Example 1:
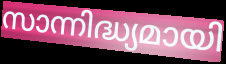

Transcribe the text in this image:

സാന്നിദ്ധ്യമായി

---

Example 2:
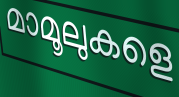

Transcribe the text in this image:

മാമൂലുകളെ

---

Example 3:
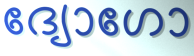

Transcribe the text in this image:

ദ്യോഗോ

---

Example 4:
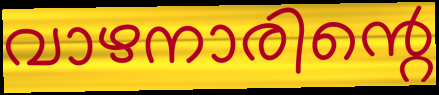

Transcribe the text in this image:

വാഴനാരിന്റെ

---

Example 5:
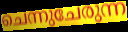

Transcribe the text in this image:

ചെന്നുചേരുന്ന